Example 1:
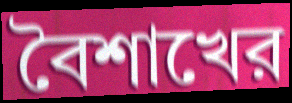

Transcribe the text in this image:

বৈশাখের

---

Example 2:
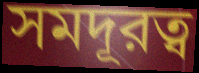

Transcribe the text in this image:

সমদূরত্ব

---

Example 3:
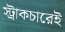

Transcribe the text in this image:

স্ট্রাকচারেই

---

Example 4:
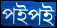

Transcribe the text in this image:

পইপই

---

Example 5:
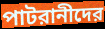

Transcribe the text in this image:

পাটরানীদের